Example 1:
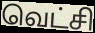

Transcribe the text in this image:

வெட்சி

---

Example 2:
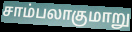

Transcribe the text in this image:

சாம்பலாகுமாறு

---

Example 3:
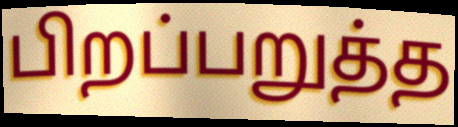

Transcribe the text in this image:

பிறப்பறுத்த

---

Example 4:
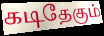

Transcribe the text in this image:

கடிதேகும்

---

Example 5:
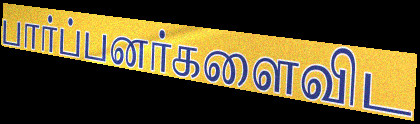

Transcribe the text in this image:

பார்ப்பனர்களைவிட